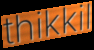
thikkil